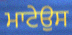
ਮਾਟੇਉਸ